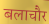
बलाचौर